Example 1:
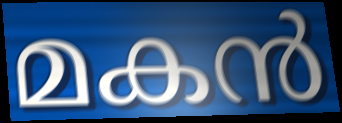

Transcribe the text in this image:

മകൻ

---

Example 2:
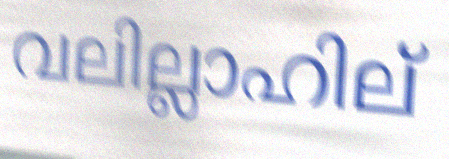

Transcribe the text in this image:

വലില്ലാഹില്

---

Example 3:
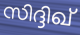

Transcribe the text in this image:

സിദ്ദിഖ്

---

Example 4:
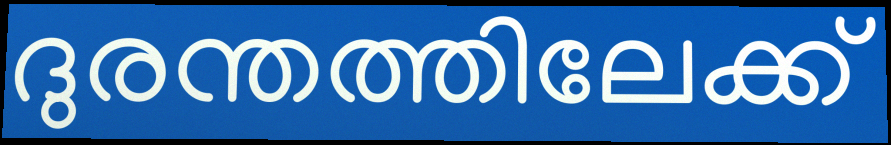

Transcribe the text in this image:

ദുരന്തത്തിലേക്ക്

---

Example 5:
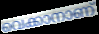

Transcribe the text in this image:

വെക്കാനാണ്